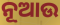
ନୂଆଉ